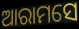
ଆରାମସେ